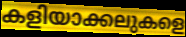
കളിയാക്കലുകളെ